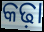
କଢ଼ା